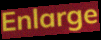
Enlarge